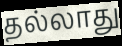
தல்லாது